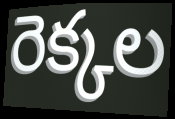
రెక్కల